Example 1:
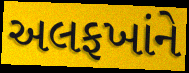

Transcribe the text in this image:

અલફખાંને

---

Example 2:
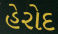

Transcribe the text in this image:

હેરોદ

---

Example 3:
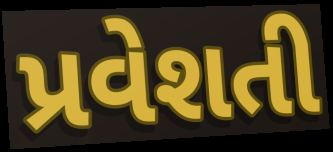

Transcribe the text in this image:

પ્રવેશતી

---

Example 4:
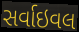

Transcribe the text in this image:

સર્વાઇવલ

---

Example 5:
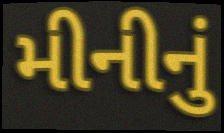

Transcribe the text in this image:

મીનીનું